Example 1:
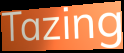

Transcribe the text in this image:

Tazing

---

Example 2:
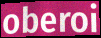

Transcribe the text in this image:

oberoi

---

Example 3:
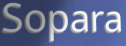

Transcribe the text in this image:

Sopara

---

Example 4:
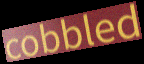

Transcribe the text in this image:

cobbled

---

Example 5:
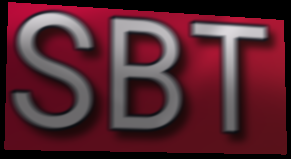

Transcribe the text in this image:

SBT